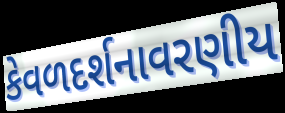
કેવળદર્શનાવરણીય